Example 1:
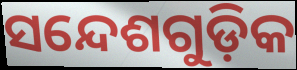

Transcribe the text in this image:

ସନ୍ଦେଶଗୁଡ଼ିକ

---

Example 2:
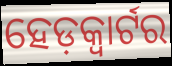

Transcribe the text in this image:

ହେଡ଼କ୍ୱାର୍ଟର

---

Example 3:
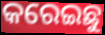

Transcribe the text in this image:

କରେଇଛୁ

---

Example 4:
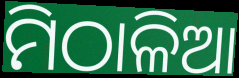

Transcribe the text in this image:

ମିଠାଳିଆ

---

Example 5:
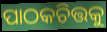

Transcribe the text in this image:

ପାଠକଚିତ୍ତକୁ